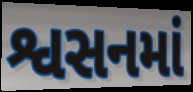
શ્વસનમાં